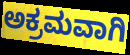
ಅಕ್ರಮವಾಗಿ